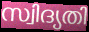
സ്വിദ്യതി